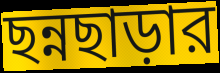
ছন্নছাড়ার